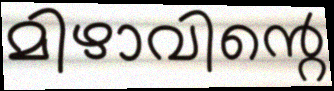
മിഴാവിന്റെ